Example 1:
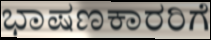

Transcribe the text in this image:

ಭಾಷಣಕಾರರಿಗೆ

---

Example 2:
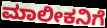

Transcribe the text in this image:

ಮಾಲೀಕನಿಗೆ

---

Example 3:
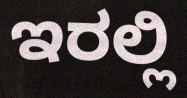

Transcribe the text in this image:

ಇರಲ್ಲಿ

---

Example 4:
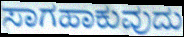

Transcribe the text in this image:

ಸಾಗಹಾಕುವುದು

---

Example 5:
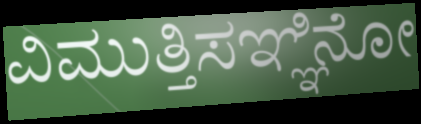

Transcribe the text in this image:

ವಿಮುತ್ತಿಸಞ್ಞಿನೋ